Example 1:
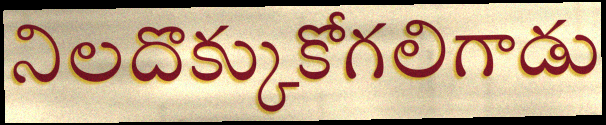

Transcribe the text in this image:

నిలదొక్కుకోగలిగాడు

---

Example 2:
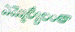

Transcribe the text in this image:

ఎమ్మెల్యేలంతా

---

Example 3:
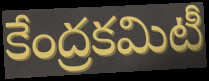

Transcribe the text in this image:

కేంద్రకమిటీ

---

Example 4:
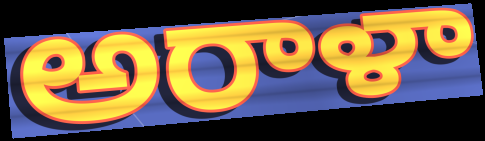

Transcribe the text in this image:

అరాళా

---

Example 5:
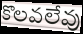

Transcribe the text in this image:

కొలవలేవు